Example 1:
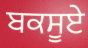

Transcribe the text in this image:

ਬਕਸੂਏ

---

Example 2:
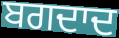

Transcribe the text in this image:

ਬਗਦਾਦ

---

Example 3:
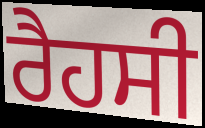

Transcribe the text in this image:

ਰੈਹਸੀ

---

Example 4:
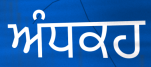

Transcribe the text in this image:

ਅੰਧਕਹ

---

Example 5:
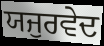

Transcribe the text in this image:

ਯਜੁਰਵੇਦ